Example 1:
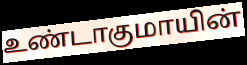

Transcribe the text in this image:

உண்டாகுமாயின்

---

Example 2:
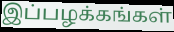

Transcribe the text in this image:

இப்பழக்கங்கள்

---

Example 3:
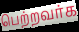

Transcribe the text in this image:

பெற்றவர்க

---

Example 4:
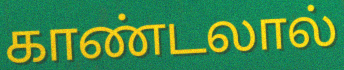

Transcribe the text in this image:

காண்டலால்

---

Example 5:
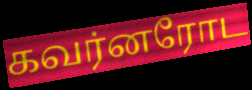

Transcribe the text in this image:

கவர்னரோட